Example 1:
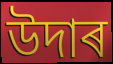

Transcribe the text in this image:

উদাৰ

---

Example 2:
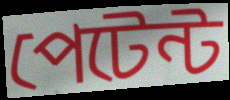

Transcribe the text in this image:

পেটেন্ট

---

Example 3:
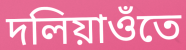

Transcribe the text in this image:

দলিয়াওঁতে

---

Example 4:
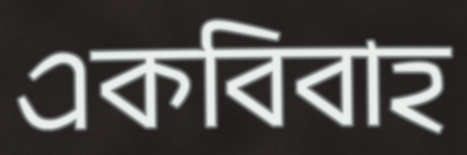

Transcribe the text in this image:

একবিবাহ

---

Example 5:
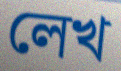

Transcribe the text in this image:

লেখ